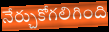
నేర్చుకోగలిగింది